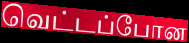
வெட்டப்போன